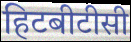
हिटबीटीसी